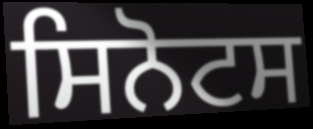
ਸਿਨੋਟਸ